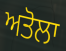
ਅਤੋਲਾ